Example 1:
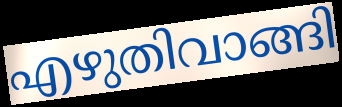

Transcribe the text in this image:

എഴുതിവാങ്ങി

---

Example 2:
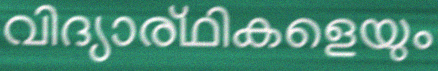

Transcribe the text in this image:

വിദ്യാര്ഥികളെയും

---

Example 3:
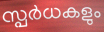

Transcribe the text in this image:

സ്പർധകളും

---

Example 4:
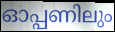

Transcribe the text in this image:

ഓപ്പണിലും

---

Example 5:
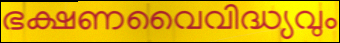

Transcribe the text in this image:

ഭക്ഷണവൈവിദ്ധ്യവും